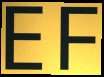
EF